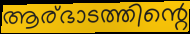
ആര്ഭാടത്തിന്റെ